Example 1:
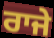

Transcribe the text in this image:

ਰਾਜੇ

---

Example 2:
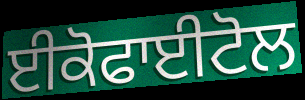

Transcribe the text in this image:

ਈਕੋਫਾਈਟੋਲ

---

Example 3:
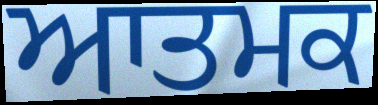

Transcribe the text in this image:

ਆਤਮਕ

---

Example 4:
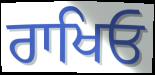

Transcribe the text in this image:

ਰਾਖਿਓ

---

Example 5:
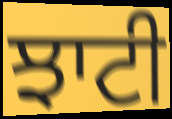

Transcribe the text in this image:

ਝਾਟੀ